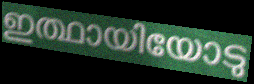
ഇത്ഥായിയോടു